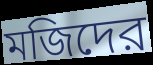
মজিদের